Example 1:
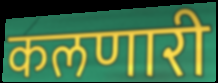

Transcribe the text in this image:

कलणारी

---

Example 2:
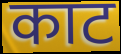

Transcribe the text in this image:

काट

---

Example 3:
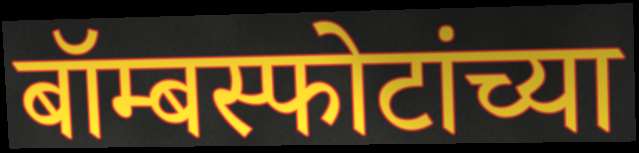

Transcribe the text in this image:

बॉम्बस्फोटांच्या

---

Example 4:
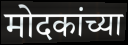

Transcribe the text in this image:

मोदकांच्या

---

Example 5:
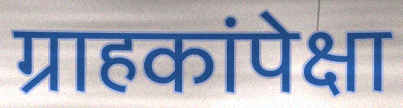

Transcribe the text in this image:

ग्राहकांपेक्षा